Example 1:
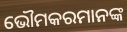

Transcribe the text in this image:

ଭୌମକରମାନଙ୍କ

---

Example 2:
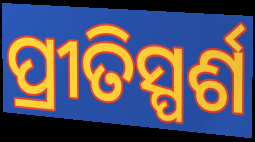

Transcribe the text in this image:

ପ୍ରୀତିସ୍ପର୍ଶ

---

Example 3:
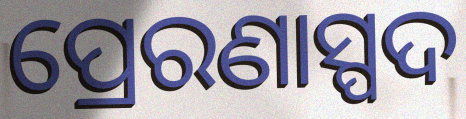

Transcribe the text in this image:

ପ୍ରେରଣାସ୍ପଦ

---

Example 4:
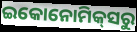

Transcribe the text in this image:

ଇକୋନୋମିକ୍‌ସରୁ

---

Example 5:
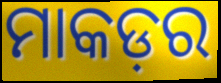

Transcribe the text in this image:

ମାକଡ଼ର